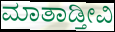
ಮಾತಾಡ್ತೀವಿ